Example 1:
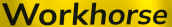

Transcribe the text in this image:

Workhorse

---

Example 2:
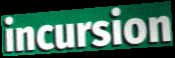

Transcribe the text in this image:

incursion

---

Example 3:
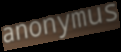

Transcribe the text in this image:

anonymus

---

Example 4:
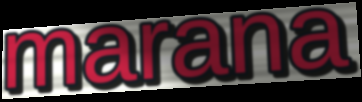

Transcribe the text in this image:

marana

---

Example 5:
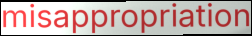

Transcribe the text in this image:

misappropriation